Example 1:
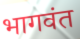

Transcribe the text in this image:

भागवंत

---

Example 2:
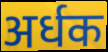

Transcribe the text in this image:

अर्धक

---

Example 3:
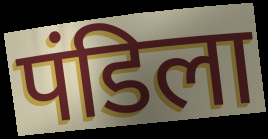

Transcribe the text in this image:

पंडिला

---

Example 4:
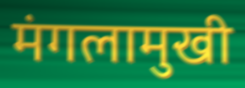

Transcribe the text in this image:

मंगलामुखी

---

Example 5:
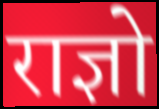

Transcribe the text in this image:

राज्ञो